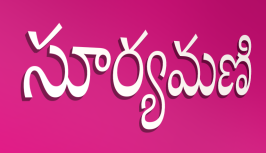
సూర్యమణి